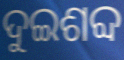
ଦୁଇଶବ୍ଦ